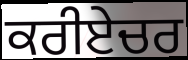
ਕਰੀਏਚਰ